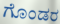
ಗೊಂಡರ